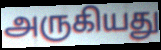
அருகியது